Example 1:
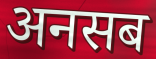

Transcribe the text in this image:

अनसब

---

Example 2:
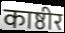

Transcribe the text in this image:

काष्ठीर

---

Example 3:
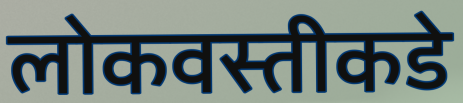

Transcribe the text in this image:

लोकवस्तीकडे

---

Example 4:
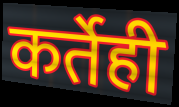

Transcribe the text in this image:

कर्तेही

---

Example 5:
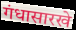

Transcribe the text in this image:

गंधासारखे